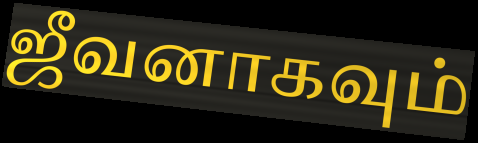
ஜீவனாகவும்